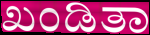
ಖಂಡಿತಾ